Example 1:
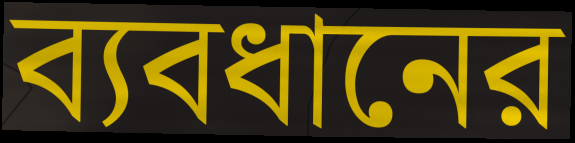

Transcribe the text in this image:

ব্যবধানের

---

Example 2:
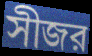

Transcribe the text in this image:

সীজর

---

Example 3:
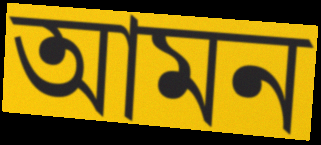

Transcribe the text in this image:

আমন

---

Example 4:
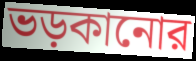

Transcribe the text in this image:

ভড়কানোর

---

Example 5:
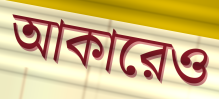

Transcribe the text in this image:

আকারেও